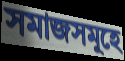
সমাজসমূহে